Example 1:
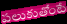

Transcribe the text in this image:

పలుకుతోంటే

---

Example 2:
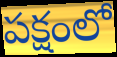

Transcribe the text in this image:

పక్షంలో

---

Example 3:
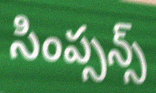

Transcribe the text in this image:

సింప్సన్స్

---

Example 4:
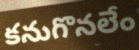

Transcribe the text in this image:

కనుగొనలేం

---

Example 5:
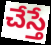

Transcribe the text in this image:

చేస్తే